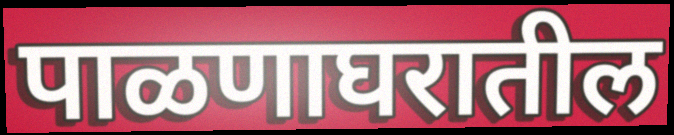
पाळणाघरातील